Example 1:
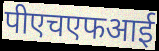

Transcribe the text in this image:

पीएचएफआई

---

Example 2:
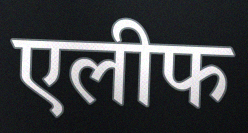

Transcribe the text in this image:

एलीफ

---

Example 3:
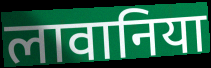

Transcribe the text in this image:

लावानिया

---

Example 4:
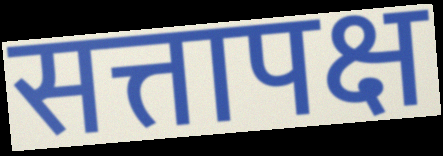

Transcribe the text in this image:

सत्तापक्ष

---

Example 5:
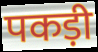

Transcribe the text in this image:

पकड़ी